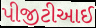
પીજીટીઆઈ